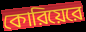
কোরিয়েরে